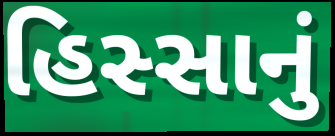
હિસ્સાનું